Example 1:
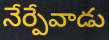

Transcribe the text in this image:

నేర్పేవాడు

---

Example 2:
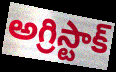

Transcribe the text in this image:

అగ్రిస్టాక్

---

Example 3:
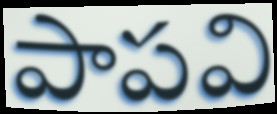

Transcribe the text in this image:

పాపవి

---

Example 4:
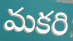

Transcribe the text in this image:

మకరి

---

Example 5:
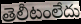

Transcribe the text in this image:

తెలీటంలేదు